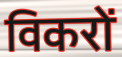
विकरों